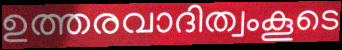
ഉത്തരവാദിത്വംകൂടെ